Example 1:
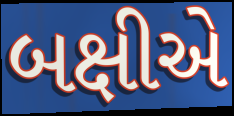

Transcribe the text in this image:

બક્ષીએ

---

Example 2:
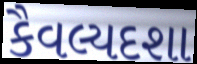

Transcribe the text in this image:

કૈવલ્યદશા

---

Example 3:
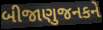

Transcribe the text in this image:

બીજાણુજનકને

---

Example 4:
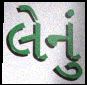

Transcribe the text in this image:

લેનું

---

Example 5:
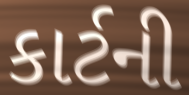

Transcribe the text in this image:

કાર્ટની